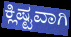
ಕ್ಲಿಷ್ಟವಾಗಿ